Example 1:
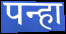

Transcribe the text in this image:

पन्हा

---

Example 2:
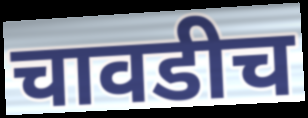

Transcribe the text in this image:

चावडीच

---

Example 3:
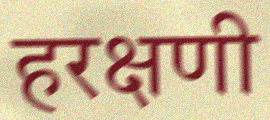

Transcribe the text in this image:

हरक्षणी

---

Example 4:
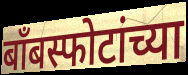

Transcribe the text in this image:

बॉंबस्फोटांच्या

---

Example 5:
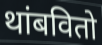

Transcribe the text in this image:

थांबवितो